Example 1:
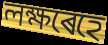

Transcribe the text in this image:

লক্ষৰেহে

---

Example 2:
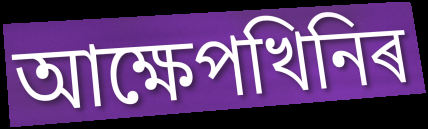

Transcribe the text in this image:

আক্ষেপখিনিৰ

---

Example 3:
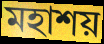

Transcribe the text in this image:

মহাশয়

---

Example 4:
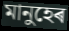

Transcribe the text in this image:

মানুহেৰ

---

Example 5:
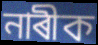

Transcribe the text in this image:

নাৰীক